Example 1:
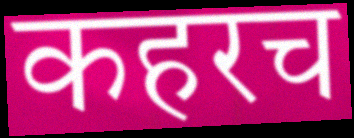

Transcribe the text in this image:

कहरच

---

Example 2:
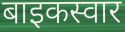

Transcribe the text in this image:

बाइकस्वार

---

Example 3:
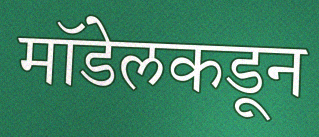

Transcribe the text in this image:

मॉडेलकडून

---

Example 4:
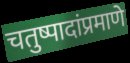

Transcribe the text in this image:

चतुष्पादांप्रमाणे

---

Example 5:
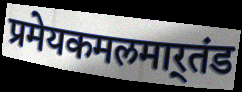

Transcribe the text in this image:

प्रमेयकमलमार्तंड